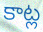
కాట్ల